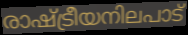
രാഷ്ട്രീയനിലപാട്